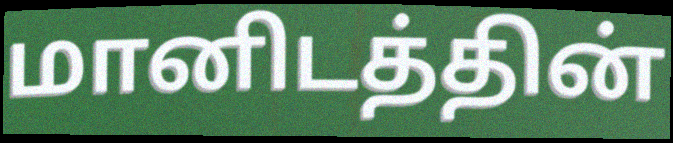
மானிடத்தின்